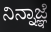
ನಿನ್ನಾಜ್ಞೆ